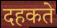
दहकते